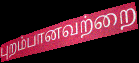
புறம்பானவற்றை